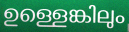
ഉള്ളെങ്കിലും